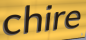
chire